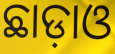
ଛାଡ଼ାଓ